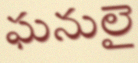
ఘనులై